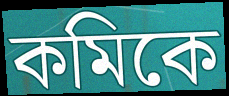
কমিকে